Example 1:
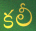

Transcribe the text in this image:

కలీ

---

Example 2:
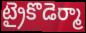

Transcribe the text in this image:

ట్రైకొడెర్మా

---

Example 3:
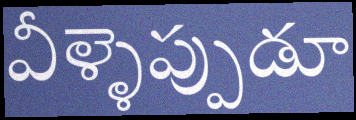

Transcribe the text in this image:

వీళ్ళెప్పుడూ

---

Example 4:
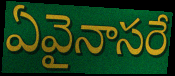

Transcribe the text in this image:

ఏవైనాసరే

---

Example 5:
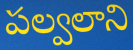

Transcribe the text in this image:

పల్వలాని